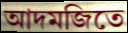
আদমজিতে